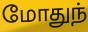
மோதுந்